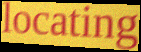
locating